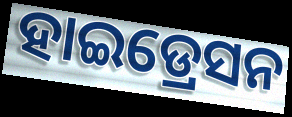
ହାଇଡ୍ରେସନ